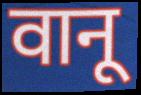
वानू